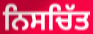
ਨਿਸਚਿੱਤ